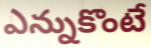
ఎన్నుకొంటే